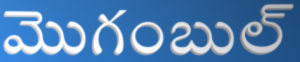
మొగంబుల్